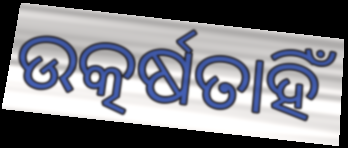
ଉତ୍କର୍ଷତାହିଁ